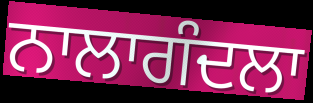
ਨਾਲਾਗੰਦਲਾ